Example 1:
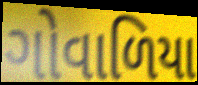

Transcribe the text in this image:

ગોવાળિયા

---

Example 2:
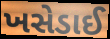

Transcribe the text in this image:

ખસેડાઈ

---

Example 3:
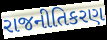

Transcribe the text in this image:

રાજનીતિકરણ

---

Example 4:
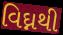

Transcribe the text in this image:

વિઘ્નથી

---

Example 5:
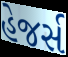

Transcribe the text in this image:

હેજર્સ